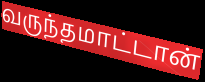
வருந்தமாட்டான்